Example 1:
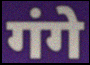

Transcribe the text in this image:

गंगे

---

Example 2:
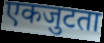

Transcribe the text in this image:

एकजुटता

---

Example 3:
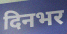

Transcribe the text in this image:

दिनभर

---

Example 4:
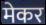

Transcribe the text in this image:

मेकर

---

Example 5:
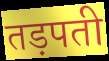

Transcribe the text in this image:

तड़पती